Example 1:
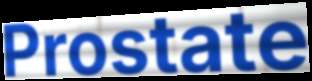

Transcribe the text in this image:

Prostate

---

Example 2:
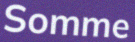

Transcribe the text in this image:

Somme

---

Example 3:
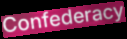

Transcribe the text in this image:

Confederacy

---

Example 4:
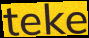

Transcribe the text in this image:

teke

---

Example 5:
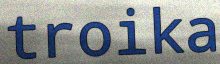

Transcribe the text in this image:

troika